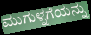
ಮುಗುಳ್ನಗೆಯನ್ನು